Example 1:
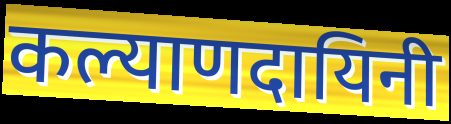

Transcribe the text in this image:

कल्याणदायिनी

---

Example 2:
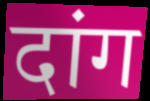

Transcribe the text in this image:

दांग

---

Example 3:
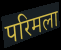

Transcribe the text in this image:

परिमला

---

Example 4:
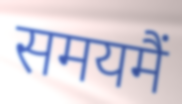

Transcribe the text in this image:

समयमैं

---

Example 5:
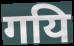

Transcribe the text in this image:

गयि